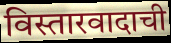
विस्तारवादाची